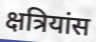
क्षत्रियांस